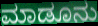
ಮಾಡೂನು